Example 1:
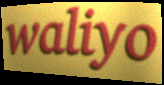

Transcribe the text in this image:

waliyo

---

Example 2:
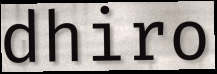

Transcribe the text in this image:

dhiro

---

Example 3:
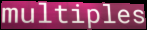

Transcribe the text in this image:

multiples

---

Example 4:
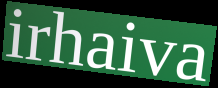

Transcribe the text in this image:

irhaiva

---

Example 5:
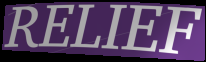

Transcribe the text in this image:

RELIEF